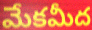
మేకమీద